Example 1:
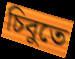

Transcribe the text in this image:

চিবুতে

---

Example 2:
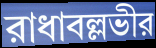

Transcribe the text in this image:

রাধাবল্লভীর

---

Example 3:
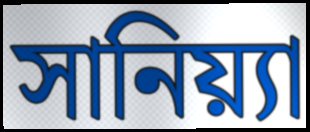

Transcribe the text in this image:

সানিয়্যা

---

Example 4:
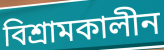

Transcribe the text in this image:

বিশ্রামকালীন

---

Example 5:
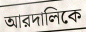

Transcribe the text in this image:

আরদালিকে